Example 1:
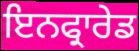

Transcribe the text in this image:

ਇਨਫ੍ਰਾਰੇਡ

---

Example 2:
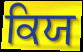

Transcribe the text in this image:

ਕਿਯ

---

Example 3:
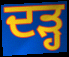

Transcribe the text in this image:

ਦੜ੍ਹ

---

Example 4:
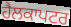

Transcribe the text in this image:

ਹੈਲਕਾਪਟਰ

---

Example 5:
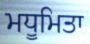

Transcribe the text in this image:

ਮਧੂਮਿਤਾ